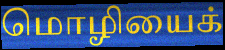
மொழியைக்